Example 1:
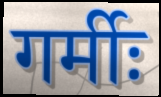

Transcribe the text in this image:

गर्मीः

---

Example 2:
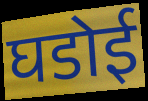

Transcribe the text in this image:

घडोई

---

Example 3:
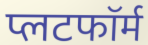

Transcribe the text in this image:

प्लटफॉर्म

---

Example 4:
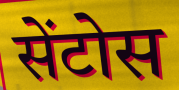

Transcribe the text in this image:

सेंटोस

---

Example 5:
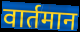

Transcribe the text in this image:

वार्तमान